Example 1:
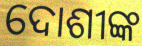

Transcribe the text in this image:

ଦୋଶୀଙ୍କ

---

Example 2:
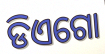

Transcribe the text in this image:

ଡିଏଗୋ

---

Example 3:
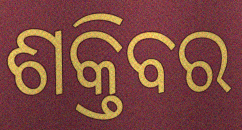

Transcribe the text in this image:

ଶକ୍ତିବର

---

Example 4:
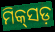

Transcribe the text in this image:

ମିକ୍‌ସଡ଼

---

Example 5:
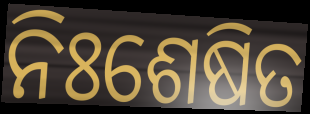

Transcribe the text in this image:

ନିଃଶେଷିତ